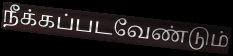
நீக்கப்படவேண்டும்